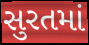
સુરતમાં